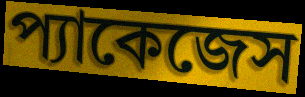
প্যাকেজেস